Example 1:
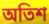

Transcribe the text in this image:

অতিশ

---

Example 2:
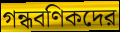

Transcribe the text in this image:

গন্ধবণিকদের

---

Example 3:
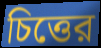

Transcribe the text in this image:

চিত্তের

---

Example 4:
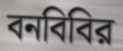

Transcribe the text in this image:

বনবিবির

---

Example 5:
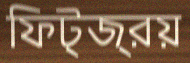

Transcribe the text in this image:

ফিট্‌জ্‌রয়